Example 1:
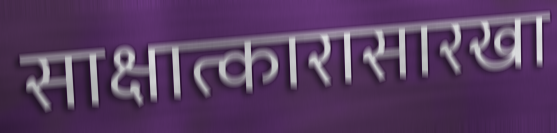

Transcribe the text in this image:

साक्षात्कारासारखा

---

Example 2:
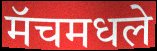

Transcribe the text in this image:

मॅचमधले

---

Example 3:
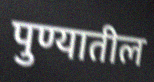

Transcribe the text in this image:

पुण्यातील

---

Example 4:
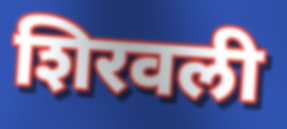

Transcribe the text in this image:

शिरवली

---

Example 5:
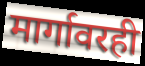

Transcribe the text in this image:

मार्गावरही